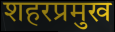
शहरप्रमुख